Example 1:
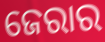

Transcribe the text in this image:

ଜେରାର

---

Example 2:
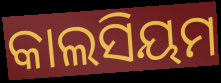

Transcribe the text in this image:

କାଲସିୟମ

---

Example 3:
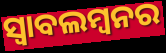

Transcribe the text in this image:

ସ୍ବାବଲମ୍ବନର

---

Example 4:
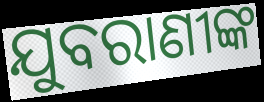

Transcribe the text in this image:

ଯୁବରାଣୀଙ୍କ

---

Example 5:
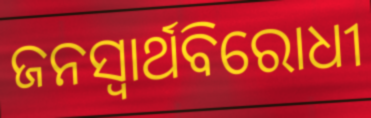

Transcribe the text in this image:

ଜନସ୍ଵାର୍ଥବିରୋଧୀ